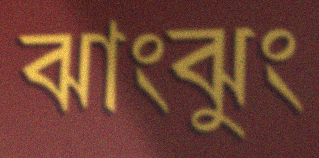
ঝাংঝুং